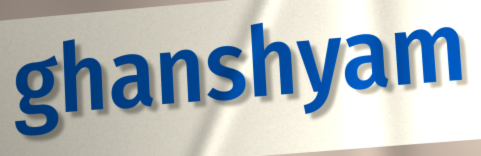
ghanshyam